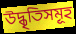
উদ্ধৃতিসমূহ